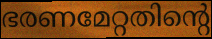
ഭരണമേറ്റതിന്റെ